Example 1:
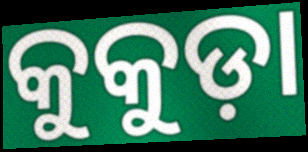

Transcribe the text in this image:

କୁକୁଡ଼ା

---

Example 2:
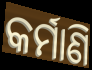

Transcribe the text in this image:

କର୍ମାଣି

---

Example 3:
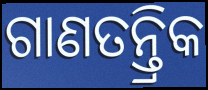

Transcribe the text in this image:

ଗାଣତନ୍ତ୍ରିକ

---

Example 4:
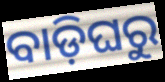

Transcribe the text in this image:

ବାଡ଼ିଘରୁ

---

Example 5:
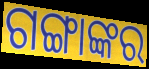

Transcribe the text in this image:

ଗଙ୍ଗାଙ୍କର